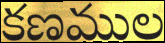
కణముల